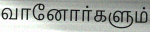
வானோர்களும்